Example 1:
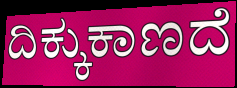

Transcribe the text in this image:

ದಿಕ್ಕುಕಾಣದೆ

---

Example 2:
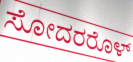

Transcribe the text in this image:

ಸೋದರರೊಳ್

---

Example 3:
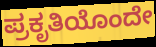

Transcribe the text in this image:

ಪ್ರಕೃತಿಯೊಂದೇ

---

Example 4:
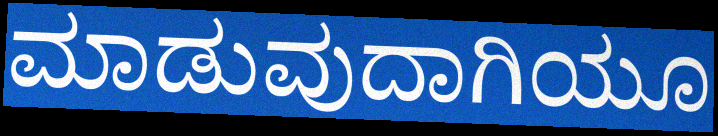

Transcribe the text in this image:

ಮಾಡುವುದಾಗಿಯೂ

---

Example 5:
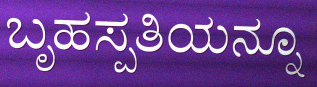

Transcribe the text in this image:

ಬೃಹಸ್ಪತಿಯನ್ನೂ